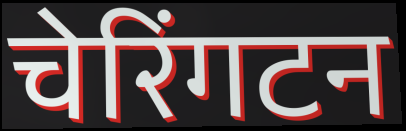
चेरिंगटन